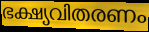
ഭക്ഷ്യവിതരണം